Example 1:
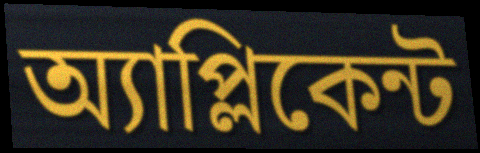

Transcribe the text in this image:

অ্যাপ্লিকেন্ট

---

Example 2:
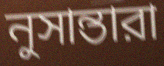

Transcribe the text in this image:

নুসান্তারা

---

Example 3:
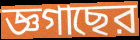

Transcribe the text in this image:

জ্ঞগাছের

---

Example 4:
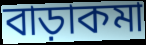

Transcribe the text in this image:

বাড়াকমা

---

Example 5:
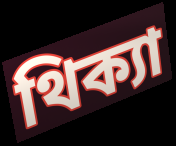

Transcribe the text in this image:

থিক্যা